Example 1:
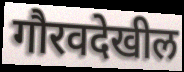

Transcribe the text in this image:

गौरवदेखील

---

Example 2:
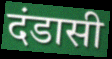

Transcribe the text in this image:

दंडासी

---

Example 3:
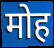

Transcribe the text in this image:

मोह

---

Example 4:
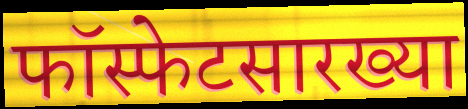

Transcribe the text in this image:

फॉस्फेटसारख्या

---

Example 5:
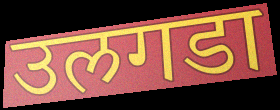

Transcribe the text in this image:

उलगडा